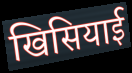
खिसियाई